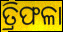
ତ୍ରିଫଳା